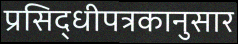
प्रसिद्धीपत्रकानुसार